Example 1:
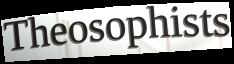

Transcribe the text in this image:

Theosophists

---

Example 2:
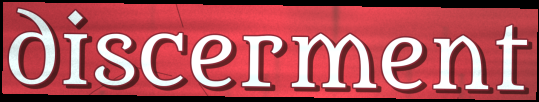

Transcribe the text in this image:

discerment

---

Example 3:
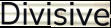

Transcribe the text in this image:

Divisive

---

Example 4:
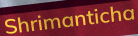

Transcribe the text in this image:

Shrimanticha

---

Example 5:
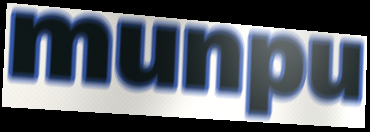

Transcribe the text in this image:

munpu